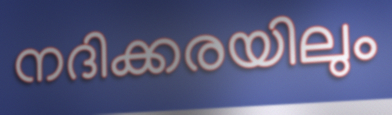
നദിക്കരയിലും